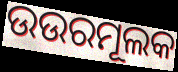
ଉଉରମୂଲକ